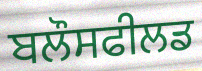
ਬਲੌਸਫੀਲਡ